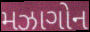
મઝાગોન